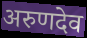
अरुणदेव